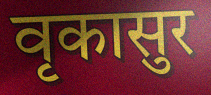
वृकासुर